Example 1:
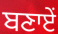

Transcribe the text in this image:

ਬਣਾਏਂ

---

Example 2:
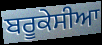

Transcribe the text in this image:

ਬਰੂਕੇਸੀਆ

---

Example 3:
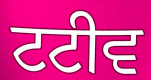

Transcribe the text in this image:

ਟਟੀਵ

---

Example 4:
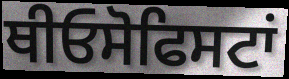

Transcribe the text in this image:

ਥੀਓਸੋਫਿਸਟਾਂ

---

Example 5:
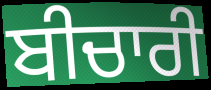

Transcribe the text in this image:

ਬੀਚਾਰੀ